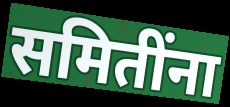
समितींना